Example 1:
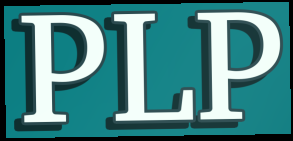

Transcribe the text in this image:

PLP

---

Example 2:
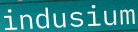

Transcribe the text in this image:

indusium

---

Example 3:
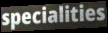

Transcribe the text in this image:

specialities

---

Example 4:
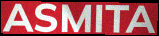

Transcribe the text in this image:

ASMITA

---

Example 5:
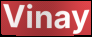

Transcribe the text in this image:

Vinay